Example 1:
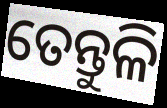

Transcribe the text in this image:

ତେନ୍ତୁଳି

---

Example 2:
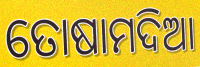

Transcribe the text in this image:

ତୋଷାମଦିଆ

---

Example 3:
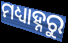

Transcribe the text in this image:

ମଧ୍ୟାହ୍ନରୁ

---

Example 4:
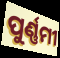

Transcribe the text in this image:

ପୁର୍ଣ୍ଣମୀ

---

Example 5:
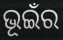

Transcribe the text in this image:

ଭୂଇଁର